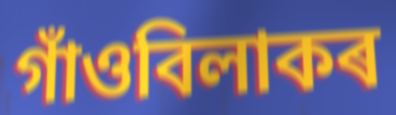
গাঁওবিলাকৰ